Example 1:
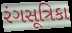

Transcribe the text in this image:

રંગસૂત્રિકા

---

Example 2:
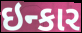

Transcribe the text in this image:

ઇન્કાર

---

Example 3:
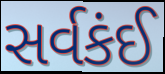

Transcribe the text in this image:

સર્વકંઈ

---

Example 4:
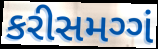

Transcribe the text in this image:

કરીસમગ્ગં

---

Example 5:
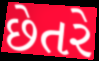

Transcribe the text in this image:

છેતરે